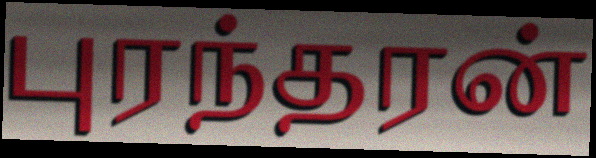
புரந்தரன்